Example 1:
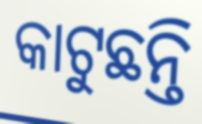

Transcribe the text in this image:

କାଟୁଛନ୍ତି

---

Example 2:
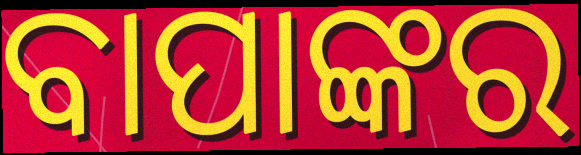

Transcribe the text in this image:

ବାପାଙ୍କର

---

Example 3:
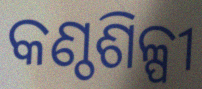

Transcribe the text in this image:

କଣ୍ଠଶିଳ୍ପୀ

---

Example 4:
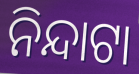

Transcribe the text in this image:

ନିନ୍ଦାଟା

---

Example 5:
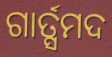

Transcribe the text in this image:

ଗାର୍ତ୍ସମଦ